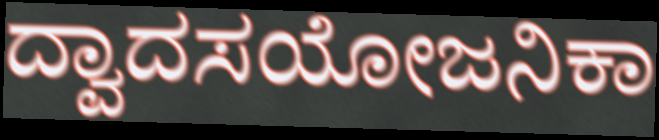
ದ್ವಾದಸಯೋಜನಿಕಾ